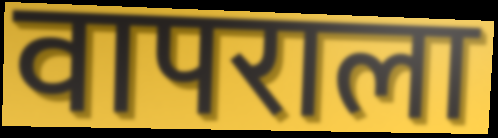
वापराला